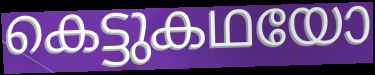
കെട്ടുകഥയോ